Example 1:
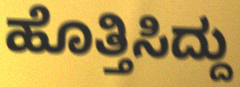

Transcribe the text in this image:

ಹೊತ್ತಿಸಿದ್ದು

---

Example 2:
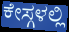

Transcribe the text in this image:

ಕೇಸ್ಗಳಲ್ಲಿ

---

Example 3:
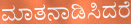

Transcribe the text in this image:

ಮಾತನಾಡಿಸಿದರೆ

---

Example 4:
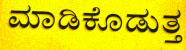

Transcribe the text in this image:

ಮಾಡಿಕೊಡುತ್ತ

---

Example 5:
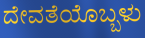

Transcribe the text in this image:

ದೇವತೆಯೊಬ್ಬಳು